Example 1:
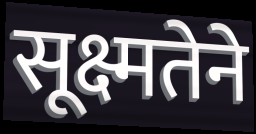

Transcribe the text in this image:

सूक्ष्मतेने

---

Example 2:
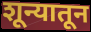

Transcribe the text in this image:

शून्यातून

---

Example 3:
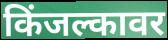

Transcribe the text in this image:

किंजल्कावर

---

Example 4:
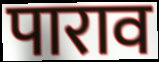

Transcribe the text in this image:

पाराव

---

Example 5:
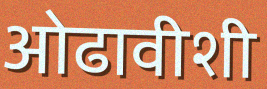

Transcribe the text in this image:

ओढावीशी